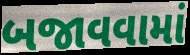
બજાવવામાં